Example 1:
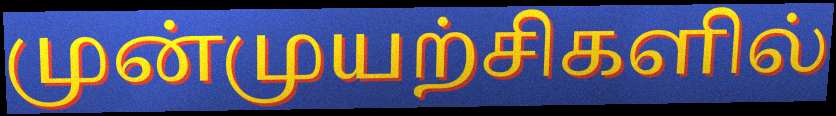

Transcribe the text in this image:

முன்முயற்சிகளில்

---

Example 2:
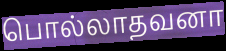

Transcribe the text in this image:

பொல்லாதவனா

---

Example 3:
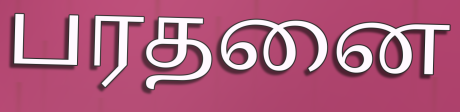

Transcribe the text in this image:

பரதனை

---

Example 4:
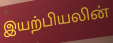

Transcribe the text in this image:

இயற்பியலின்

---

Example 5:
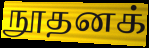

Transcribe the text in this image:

நூதனக்